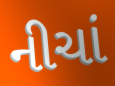
નીચાં